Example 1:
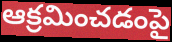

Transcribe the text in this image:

ఆక్రమించడంపై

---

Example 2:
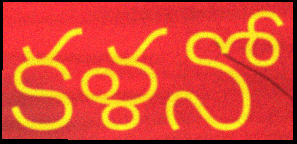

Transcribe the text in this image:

కళనో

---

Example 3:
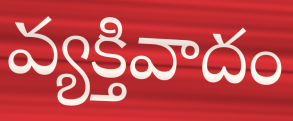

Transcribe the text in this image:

వ్యక్తివాదం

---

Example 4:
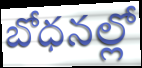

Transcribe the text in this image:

బోధనల్లో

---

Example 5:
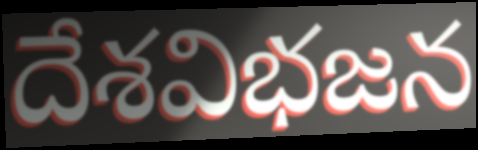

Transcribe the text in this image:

దేశవిభజన